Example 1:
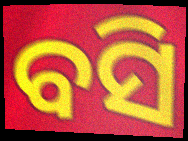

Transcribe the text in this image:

ବସି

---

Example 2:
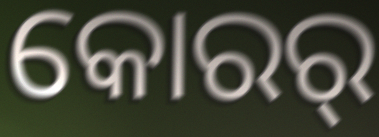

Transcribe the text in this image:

କୋରର୍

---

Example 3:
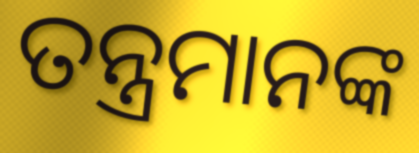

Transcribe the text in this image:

ତନ୍ତ୍ରମାନଙ୍କ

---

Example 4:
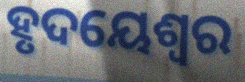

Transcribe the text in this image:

ହୃଦୟେଶ୍ୱର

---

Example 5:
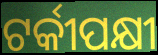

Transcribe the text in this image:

ଟର୍କୀପକ୍ଷୀ